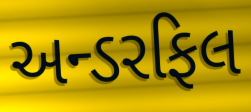
અન્ડરફિલ